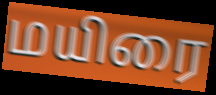
மயிரை